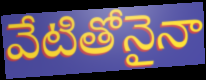
వేటితోనైనా